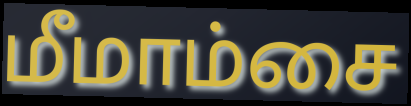
மீமாம்சை